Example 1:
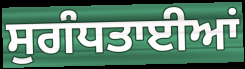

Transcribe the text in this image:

ਸੁਗੰਧਤਾਈਆਂ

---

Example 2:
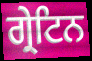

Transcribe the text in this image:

ਗ੍ਰੇਟਿਨ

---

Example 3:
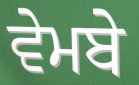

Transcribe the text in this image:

ਵੇਮਬੇ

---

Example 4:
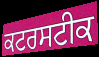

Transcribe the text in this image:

ਕਟਰਸਟੀਕ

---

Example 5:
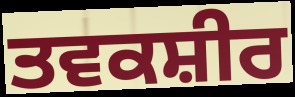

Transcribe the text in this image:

ਤਵਕਸ਼ੀਰ